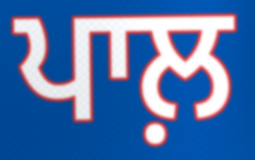
ਪਾਲ਼